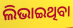
ଲିଭାଇଥିବା